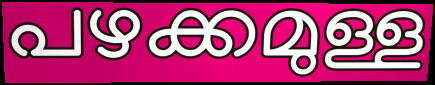
പഴക്കമുള്ള